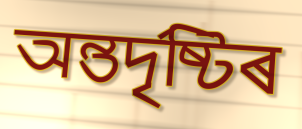
অন্তৰ্দৃষ্টিৰ